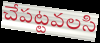
చేపట్టవలసి